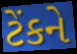
ટેંકને